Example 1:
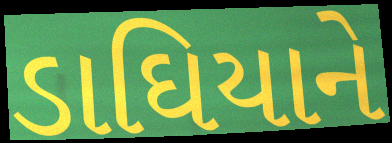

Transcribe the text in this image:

ડાઘિયાને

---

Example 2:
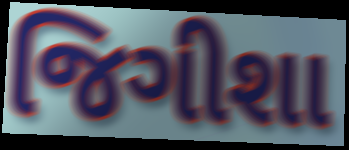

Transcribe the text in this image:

જિગીશા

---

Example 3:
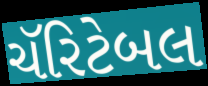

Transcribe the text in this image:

ચૅરિટેબલ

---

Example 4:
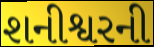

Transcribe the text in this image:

શનીશ્વરની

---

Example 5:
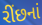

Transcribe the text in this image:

રીંછનાં